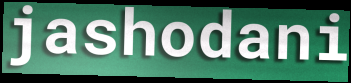
jashodani